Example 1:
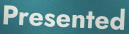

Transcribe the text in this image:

Presented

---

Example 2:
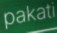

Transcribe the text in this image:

pakati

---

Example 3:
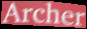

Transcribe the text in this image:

Archer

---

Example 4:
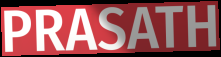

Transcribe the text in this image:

PRASATH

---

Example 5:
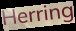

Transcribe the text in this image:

Herring